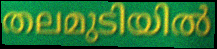
തലമുടിയിൽ